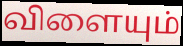
விளையும்